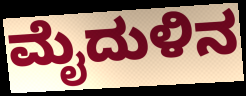
ಮೈದುಳಿನ